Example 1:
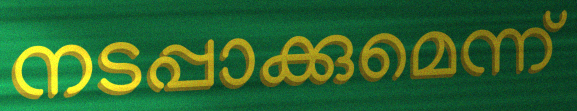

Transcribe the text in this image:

നടപ്പാക്കുമെന്ന്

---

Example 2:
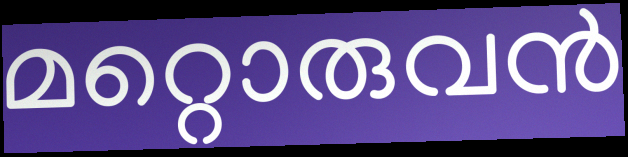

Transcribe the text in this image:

മറ്റൊരുവൻ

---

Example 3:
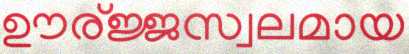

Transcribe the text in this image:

ഊര്ജ്ജസ്വലമായ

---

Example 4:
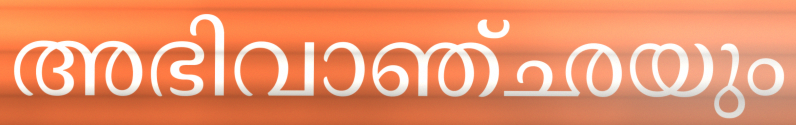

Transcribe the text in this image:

അഭിവാഞ്ഛയും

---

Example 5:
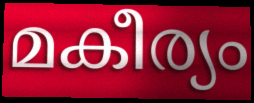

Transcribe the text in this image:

മകീര്യം